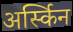
अर्स्किन